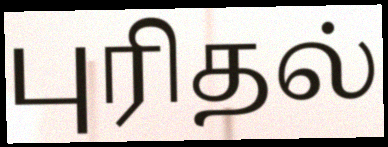
புரிதல்